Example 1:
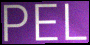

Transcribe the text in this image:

PEL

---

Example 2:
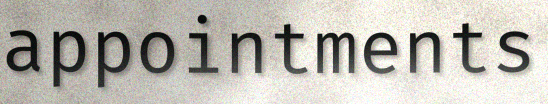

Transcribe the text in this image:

appointments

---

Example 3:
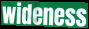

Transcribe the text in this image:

wideness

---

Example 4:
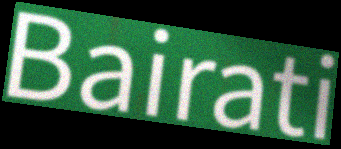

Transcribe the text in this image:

Bairati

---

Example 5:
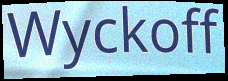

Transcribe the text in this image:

Wyckoff